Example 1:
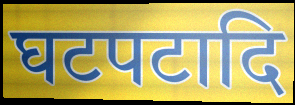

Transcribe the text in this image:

घटपटादि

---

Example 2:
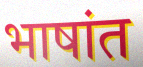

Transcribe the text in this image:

भाषांत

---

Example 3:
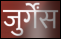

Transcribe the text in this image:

जुर्गेंस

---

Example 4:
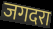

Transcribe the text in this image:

जगदरा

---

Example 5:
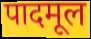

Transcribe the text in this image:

पादमूल